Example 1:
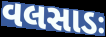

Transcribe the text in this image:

વલસાડઃ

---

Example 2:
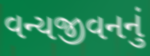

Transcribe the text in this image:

વન્યજીવનનું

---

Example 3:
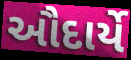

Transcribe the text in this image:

ઔદાર્યે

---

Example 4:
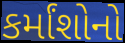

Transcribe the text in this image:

કર્માંશોનો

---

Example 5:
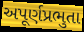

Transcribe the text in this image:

અપૂર્ણપ્રભુતા